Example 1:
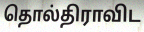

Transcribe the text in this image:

தொல்திராவிட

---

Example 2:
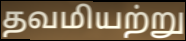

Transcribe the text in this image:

தவமியற்று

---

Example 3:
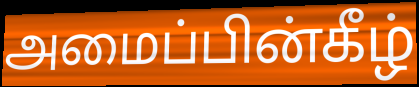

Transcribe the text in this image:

அமைப்பின்கீழ்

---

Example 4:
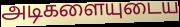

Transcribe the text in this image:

அடிகளையுடைய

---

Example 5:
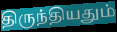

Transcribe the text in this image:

திருந்தியதும்